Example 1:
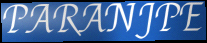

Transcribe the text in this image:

PARANJPE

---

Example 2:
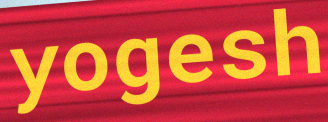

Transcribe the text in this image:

yogesh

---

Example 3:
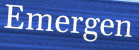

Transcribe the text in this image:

Emergen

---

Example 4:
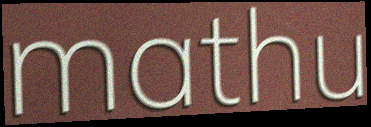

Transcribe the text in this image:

mathu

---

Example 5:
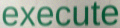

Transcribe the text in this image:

execute